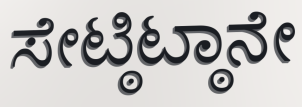
ಸೇಟ್ಠಿಟ್ಠಾನೇ